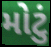
મોટું